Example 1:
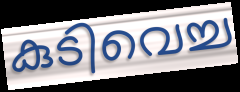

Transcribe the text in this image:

കുടിവെച്ച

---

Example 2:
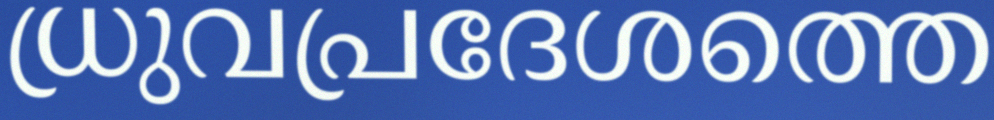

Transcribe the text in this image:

ധ്രുവപ്രദേശത്തെ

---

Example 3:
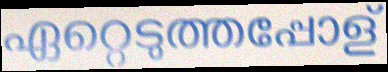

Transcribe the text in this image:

ഏറ്റെടുത്തപ്പോള്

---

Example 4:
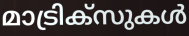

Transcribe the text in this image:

മാട്രിക്സുകൾ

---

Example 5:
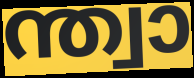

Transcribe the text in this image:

ന്ത്വാ